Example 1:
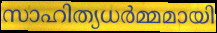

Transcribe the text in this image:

സാഹിത്യധർമ്മമായി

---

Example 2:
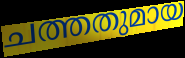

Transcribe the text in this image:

ചത്തതുമായ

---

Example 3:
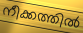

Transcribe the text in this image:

നീക്കത്തിൽ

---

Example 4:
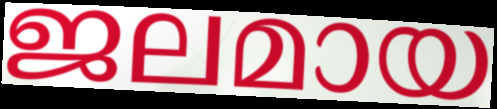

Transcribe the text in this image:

ജലമായ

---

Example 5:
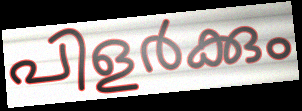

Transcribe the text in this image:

പിളർക്കും